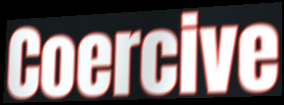
Coercive